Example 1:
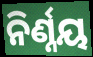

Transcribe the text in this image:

ନିର୍ଣ୍ନୟ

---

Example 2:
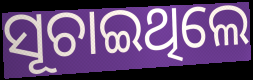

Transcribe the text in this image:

ସୂଚାଇଥିଲେ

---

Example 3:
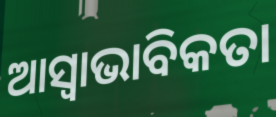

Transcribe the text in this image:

ଆସ୍ବାଭାବିକତା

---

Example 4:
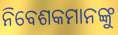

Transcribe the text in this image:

ନିବେଶକମାନଙ୍କୁ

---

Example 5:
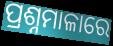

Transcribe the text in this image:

ପ୍ରଶ୍ନମାଳାରେ